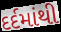
દર્દમાંથી